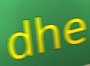
dhe